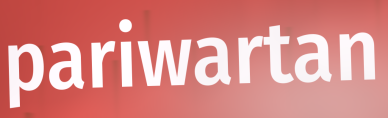
pariwartan